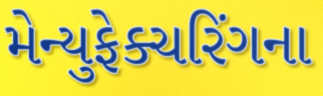
મેન્યુફેક્ચરિંગના